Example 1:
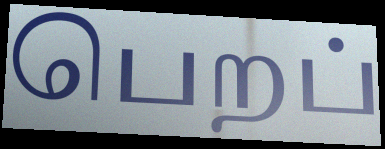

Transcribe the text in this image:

பெறப்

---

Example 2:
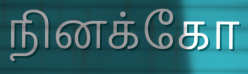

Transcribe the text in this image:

நினக்கோ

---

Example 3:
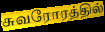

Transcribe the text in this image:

சுவரோரத்தில்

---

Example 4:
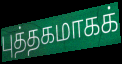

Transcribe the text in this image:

புத்தகமாகக்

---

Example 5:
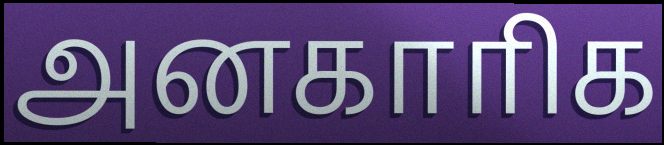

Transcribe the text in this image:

அனகாரிக